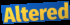
Altered